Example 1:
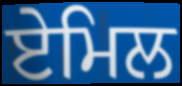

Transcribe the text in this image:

ਏਮਿਲ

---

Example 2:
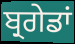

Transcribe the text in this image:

ਬ੍ਰਗੇਡਾਂ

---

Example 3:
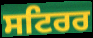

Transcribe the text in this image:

ਸਟਿਰਰ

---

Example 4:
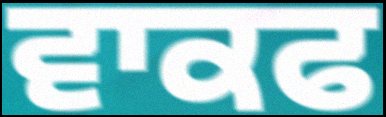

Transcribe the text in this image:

ਵਾਕਫ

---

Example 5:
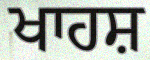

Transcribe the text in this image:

ਖਾਹਸ਼